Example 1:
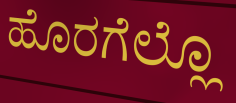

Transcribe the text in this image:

ಹೊರಗೆಲ್ಲೊ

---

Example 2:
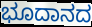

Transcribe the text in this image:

ಭೂದಾನದ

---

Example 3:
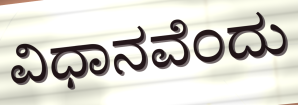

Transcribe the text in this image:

ವಿಧಾನವೆಂದು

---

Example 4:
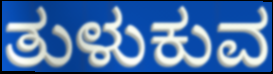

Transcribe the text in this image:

ತುಳುಕುವ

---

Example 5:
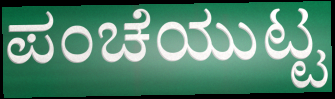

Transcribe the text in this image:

ಪಂಚೆಯುಟ್ಟ